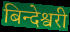
बिन्देश्वरी